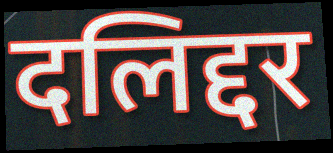
दलिद्दर